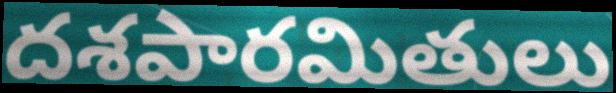
దశపారమితులు